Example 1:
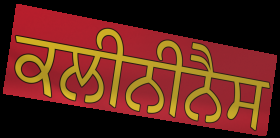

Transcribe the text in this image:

ਕਲੀਨੀਨੈਸ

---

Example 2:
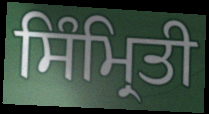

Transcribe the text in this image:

ਸਿੰਮ੍ਰਿਤੀ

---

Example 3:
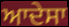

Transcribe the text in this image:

ਆਦੇਸਾ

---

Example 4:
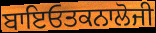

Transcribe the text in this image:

ਬਾਇਓਤਕਨਾਲੋਜੀ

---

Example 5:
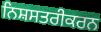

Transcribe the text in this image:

ਨਿਸ਼ਸਤਰੀਕਰਨ